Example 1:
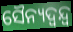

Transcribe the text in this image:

ସୈନ୍ୟଦ୍ୱନ୍ଦ୍ୱ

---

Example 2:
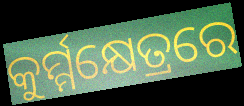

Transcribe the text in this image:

କୁର୍ମ୍ମକ୍ଷେତ୍ରରେ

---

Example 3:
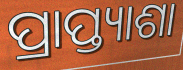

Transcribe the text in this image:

ପ୍ରାପ୍ତ୍ୟାଶା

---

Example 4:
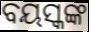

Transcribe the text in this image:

ବୟସ୍କଙ୍କ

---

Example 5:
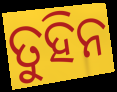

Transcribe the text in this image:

ତୁହିନ